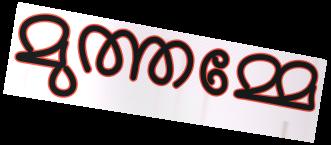
മുത്തമ്മേ